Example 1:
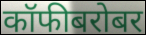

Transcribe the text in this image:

कॉफीबरोबर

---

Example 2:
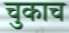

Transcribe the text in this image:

चुकाच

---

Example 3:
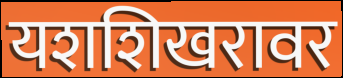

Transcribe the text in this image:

यशशिखरावर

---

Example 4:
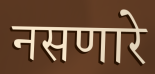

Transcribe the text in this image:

नसणारे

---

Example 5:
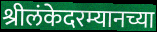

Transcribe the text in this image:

श्रीलंकेदरम्यानच्या